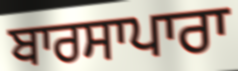
ਬਾਰਸਾਪਾਰਾ